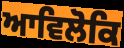
ਆਵਿਲੋਕਿ